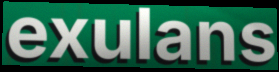
exulans